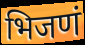
भिजणं